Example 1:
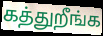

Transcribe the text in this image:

கத்துறீங்க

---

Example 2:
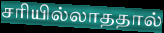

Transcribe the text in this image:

சரியில்லாததால்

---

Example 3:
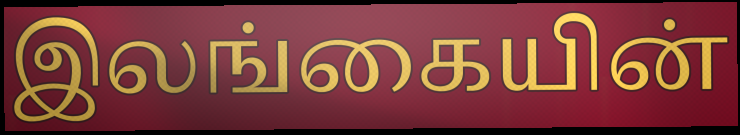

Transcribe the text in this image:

இலங்கையின்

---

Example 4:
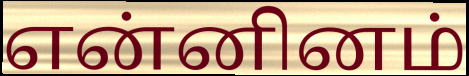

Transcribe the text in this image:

என்னினம்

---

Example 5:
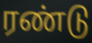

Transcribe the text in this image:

ரண்டு